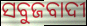
ସବୁଜବାଦୀ